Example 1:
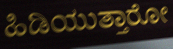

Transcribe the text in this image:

ಹಿಡಿಯುತ್ತಾರೋ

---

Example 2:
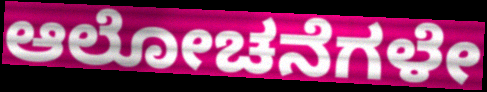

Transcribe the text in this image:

ಆಲೋಚನೆಗಳೇ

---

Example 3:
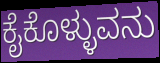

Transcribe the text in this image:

ಕೈಕೊಳ್ಳುವನು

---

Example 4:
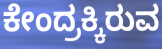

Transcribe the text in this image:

ಕೇಂದ್ರಕ್ಕಿರುವ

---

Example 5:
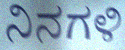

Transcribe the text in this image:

ನಿನಗಳಿ